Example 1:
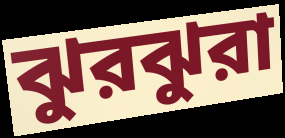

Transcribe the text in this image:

ঝুরঝুরা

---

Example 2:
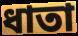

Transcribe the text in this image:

ধাতা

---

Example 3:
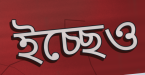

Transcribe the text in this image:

ইচ্ছেও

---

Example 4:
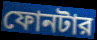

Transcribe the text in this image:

ফোনটার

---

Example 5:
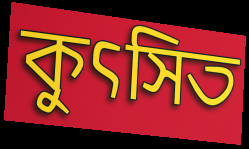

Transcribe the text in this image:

কুৎসিত